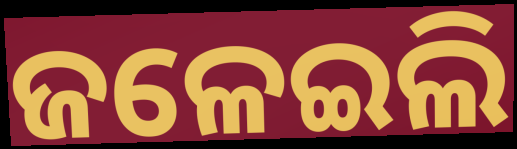
ଜଳେଇଲି